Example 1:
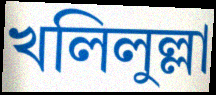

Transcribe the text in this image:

খলিলুল্লা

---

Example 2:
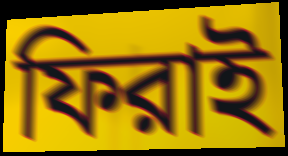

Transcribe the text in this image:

ফিরাই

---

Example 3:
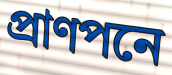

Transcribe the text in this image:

প্রাণপনে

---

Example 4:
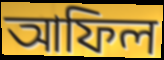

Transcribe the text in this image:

আফিল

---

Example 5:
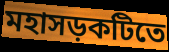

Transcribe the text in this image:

মহাসড়কটিতে